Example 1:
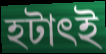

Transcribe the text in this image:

হটাৎই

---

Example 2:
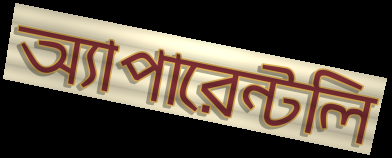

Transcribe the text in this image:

অ্যাপারেন্টলি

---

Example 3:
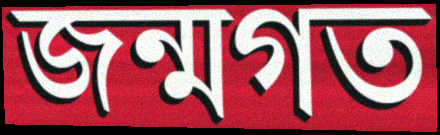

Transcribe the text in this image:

জন্মগত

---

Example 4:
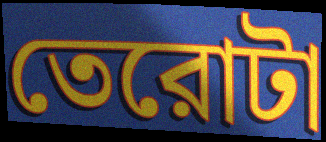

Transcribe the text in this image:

তেরোটা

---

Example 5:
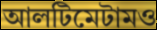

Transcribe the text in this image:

আলটিমেটামও